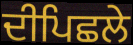
ਦੀਪਿਛਲੇ